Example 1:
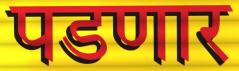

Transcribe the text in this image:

पडणार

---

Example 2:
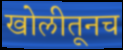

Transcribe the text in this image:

खोलीतूनच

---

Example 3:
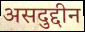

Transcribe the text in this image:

असदुद्दीन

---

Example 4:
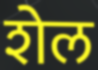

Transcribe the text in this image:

शेल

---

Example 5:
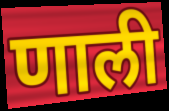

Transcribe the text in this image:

णाली